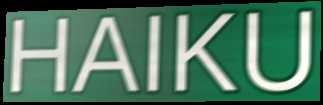
HAIKU